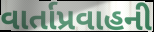
વાર્તાપ્રવાહની